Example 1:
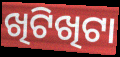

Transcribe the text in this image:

ଖିଟିଖିଟା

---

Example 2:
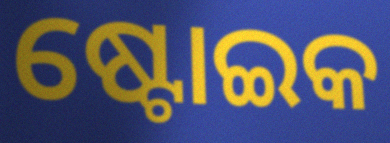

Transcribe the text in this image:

ଷ୍ଟୋଇକ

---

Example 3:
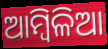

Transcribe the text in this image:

ଆମ୍ୱିଳିଆ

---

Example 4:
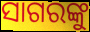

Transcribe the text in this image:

ସାଗରଙ୍କୁ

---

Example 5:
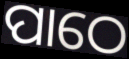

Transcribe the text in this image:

ପାଠେ